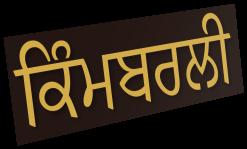
ਕਿੰਮਬਰਲੀ